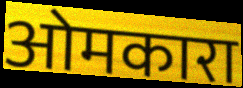
ओमकारा